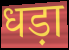
धड़ा